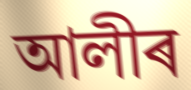
আলীৰ